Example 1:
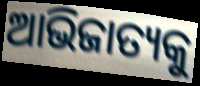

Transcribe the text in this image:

ଆଭିଜାତ୍ୟକୁ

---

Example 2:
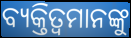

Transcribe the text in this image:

ବ୍ୟକ୍ତିତ୍ବମାନଙ୍କୁ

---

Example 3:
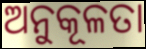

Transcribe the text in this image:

ଅନୁକୂଳତା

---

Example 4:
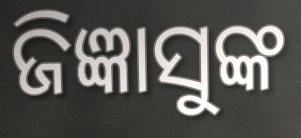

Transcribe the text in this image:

ଜିଜ୍ଞାସୁଙ୍କ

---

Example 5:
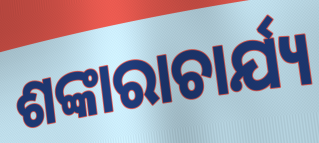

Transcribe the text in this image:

ଶଙ୍କାରାଚାର୍ଯ୍ୟ